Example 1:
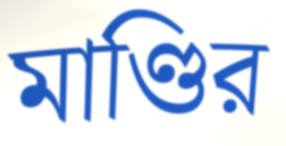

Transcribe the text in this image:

মাণ্ডির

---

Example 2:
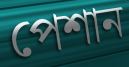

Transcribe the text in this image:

পেশান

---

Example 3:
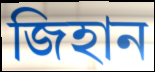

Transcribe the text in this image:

জিহান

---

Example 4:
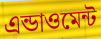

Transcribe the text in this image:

এন্ডাওমেন্ট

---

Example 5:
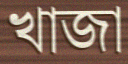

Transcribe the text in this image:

খাজা